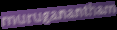
muruganantham